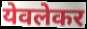
येवलेकर